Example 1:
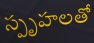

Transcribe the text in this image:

స్పృహలతో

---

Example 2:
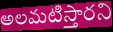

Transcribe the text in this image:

అలమటిస్తారని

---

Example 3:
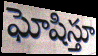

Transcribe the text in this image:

ఘోషిస్తూ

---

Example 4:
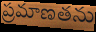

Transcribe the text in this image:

ప్రమాణతను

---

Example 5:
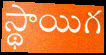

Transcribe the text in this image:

స్థాయిగ